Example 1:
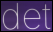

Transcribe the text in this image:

det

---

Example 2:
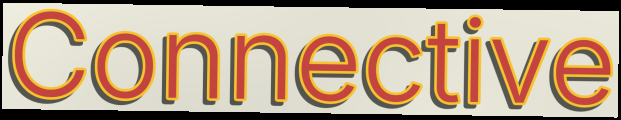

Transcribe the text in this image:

Connective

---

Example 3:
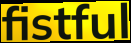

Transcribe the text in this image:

fistful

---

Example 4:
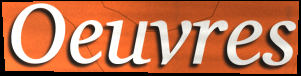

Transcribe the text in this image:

Oeuvres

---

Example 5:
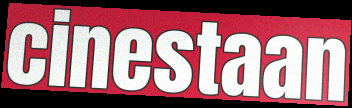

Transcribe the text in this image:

cinestaan